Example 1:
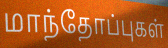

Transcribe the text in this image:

மாந்தோப்புகள்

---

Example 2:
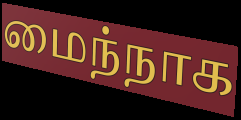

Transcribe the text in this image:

மைந்நாக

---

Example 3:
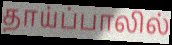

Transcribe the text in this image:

தாய்ப்பாலில்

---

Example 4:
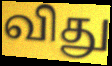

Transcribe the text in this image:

விது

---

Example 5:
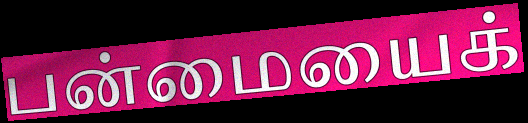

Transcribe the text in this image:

பன்மையைக்